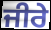
ਜੀਰੇ